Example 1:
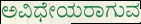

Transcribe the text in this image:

ಅವಿಧೇಯರಾಗುವ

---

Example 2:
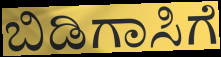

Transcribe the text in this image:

ಬಿಡಿಗಾಸಿಗೆ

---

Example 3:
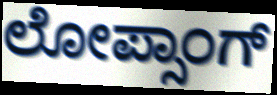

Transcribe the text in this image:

ಲೋಪ್ಸಾಂಗ್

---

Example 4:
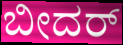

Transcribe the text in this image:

ಬೀದರ್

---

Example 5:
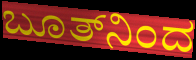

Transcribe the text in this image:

ಬೂತ್‌ನಿಂದ